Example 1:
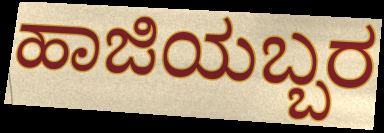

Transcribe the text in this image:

ಹಾಜಿಯಬ್ಬರ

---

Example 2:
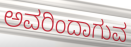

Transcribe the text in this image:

ಅವರಿಂದಾಗುವ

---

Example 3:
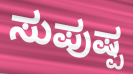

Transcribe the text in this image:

ಸುಪುಷ್ಪ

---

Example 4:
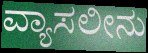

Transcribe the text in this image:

ವ್ಯಾಸಲೀನು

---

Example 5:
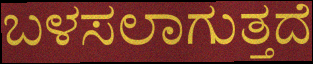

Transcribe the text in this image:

ಬಳಸಲಾಗುತ್ತದೆ